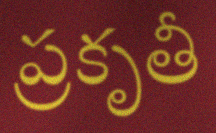
ప్రకృతీ